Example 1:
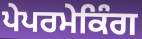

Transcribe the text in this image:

ਪੇਪਰਮੇਕਿੰਗ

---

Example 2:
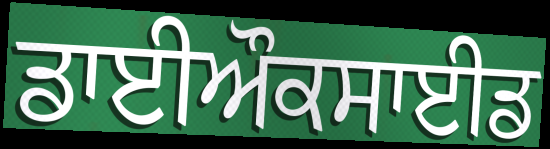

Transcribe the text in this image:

ਡਾਈਔਕਸਾਈਡ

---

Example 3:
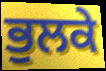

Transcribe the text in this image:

ਭੁਲਕੇ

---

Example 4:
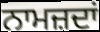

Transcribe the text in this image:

ਨਾਮਜ਼ਦਾਂ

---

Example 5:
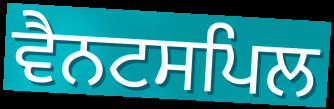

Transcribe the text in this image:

ਵੈਨਟਸਪਿਲ